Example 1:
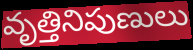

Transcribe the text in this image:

వృత్తినిపుణులు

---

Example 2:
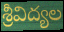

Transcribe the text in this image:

శ్రీవిద్యల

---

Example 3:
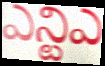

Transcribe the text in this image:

ఎన్టిఎ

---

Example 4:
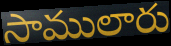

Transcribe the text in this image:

సాములారు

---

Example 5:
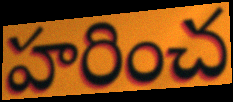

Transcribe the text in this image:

హరించ